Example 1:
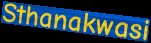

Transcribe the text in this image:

Sthanakwasi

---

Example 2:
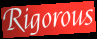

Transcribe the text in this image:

Rigorous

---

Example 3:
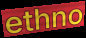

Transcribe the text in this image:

ethno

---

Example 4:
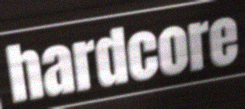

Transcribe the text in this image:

hardcore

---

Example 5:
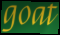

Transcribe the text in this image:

goat